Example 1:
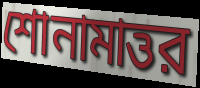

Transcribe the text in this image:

শোনামাত্তর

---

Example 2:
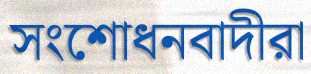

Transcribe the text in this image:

সংশোধনবাদীরা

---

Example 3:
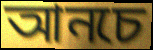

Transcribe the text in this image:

আনচে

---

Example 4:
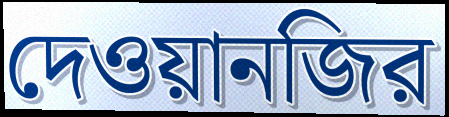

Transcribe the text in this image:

দেওয়ানজির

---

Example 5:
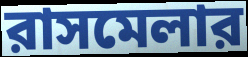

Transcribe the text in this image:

রাসমেলার